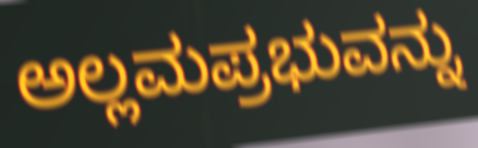
ಅಲ್ಲಮಪ್ರಭುವನ್ನು